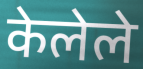
केलेले